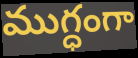
ముగ్ధంగా